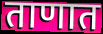
ताणात